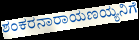
ಶಂಕರನಾರಾಯಣಯ್ಯನಿಗೆ